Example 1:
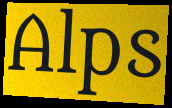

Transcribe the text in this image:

Alps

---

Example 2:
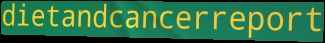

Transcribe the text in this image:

dietandcancerreport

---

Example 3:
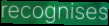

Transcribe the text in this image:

recognises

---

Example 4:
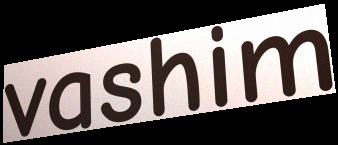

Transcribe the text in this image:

vashim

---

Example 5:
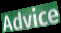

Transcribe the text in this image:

Advice